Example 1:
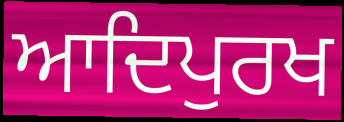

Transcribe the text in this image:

ਆਦਿਪੁਰਖ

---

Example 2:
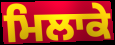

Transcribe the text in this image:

ਮਿਲਾਕੇ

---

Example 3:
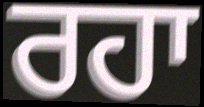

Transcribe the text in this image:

ਰਹਾ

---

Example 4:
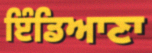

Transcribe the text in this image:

ਇੰਡਿਆਣਾ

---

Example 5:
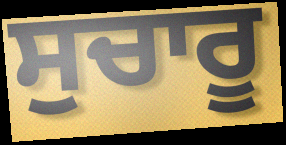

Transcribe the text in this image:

ਸੁਚਾਰੂ